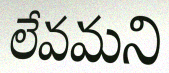
లేవమని